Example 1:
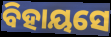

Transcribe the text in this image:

ବିହାୟସେ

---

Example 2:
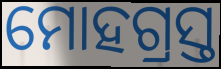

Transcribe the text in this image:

ମୋହଗ୍ରସ୍ତ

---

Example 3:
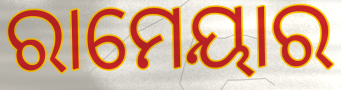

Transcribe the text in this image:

ରାମେୟାର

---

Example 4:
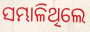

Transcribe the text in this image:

ସମ୍ଭାଳିଥିଲେ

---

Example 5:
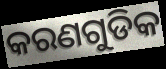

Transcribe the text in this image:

କରଣଗୁଡିକ